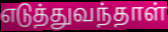
எடுத்துவந்தாள்